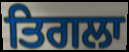
ਤਿਗਲਾ